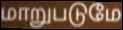
மாறுபடுமே